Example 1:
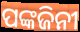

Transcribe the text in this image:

ପଙ୍କଜିନୀ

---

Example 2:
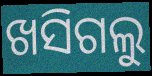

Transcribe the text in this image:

ଖସିଗଲୁ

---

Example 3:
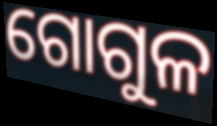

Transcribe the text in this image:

ଗୋଗୁଳ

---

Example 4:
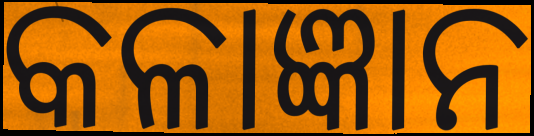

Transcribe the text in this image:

କଳାଜ୍ଞାନ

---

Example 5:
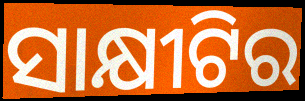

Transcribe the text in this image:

ସାକ୍ଷୀଟିର